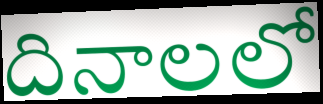
దినాలలో